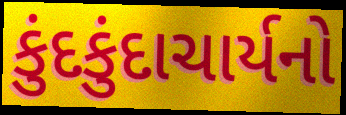
કુંદકુંદાચાર્યનો